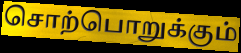
சொற்பொறுக்கும்